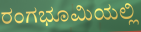
ರಂಗಭೂಮಿಯಲ್ಲಿ